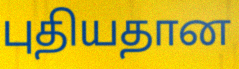
புதியதான